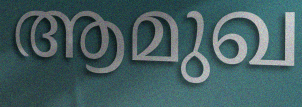
ആമുഖ